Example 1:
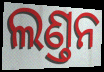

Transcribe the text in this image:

ଲଣ୍ତନ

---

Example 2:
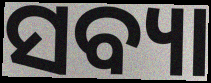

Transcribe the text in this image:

ସବ୍ୟା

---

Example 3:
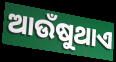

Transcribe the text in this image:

ଆଉଁଷୁଥାଏ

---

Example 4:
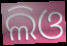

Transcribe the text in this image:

ଲିଓ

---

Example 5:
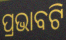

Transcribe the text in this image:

ପ୍ରଭାବଟି